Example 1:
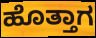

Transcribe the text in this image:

ಹೊತ್ತಾಗ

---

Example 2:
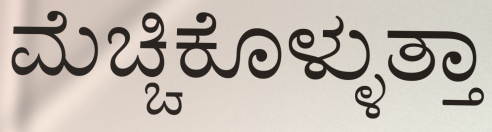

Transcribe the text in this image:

ಮೆಚ್ಚಿಕೊಳ್ಳುತ್ತಾ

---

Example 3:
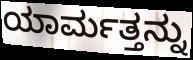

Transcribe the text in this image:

ಯಾರ್ಮತ್ತನ್ನು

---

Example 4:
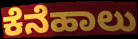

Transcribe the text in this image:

ಕೆನೆಹಾಲು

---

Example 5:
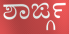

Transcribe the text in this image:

ಶಾರ್ಙ್ಗ